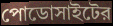
পোডোসাইটের